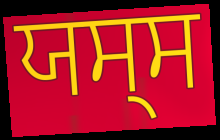
ਯਸ੍ਸ